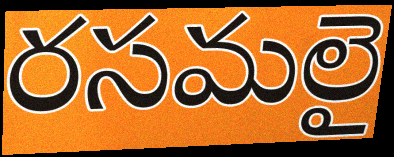
రసమలై